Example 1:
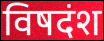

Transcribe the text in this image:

विषदंश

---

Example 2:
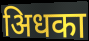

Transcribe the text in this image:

अिधका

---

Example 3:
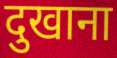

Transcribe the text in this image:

दुखाना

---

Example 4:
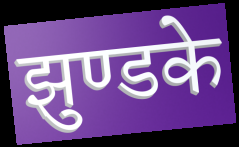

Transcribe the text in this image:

झुण्डके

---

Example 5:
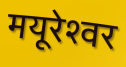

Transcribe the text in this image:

मयूरेश्वर